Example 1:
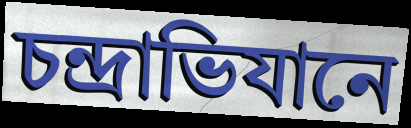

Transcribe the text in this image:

চন্দ্রাভিযানে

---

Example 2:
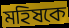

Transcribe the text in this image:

মহিষকে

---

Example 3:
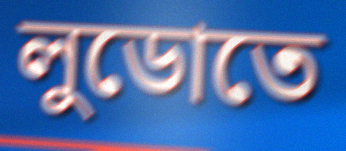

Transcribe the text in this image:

লুডোতে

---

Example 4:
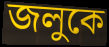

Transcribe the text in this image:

জলুকে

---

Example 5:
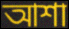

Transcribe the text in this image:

আশা